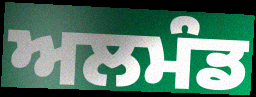
ਅਲਮੰਡ